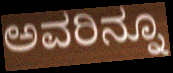
ಅವರಿನ್ನೂ